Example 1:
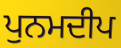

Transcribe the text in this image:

ਪੁਨਮਦੀਪ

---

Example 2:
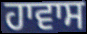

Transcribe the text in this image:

ਹਾਵਾਸ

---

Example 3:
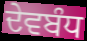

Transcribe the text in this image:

ਦੇਵਬੰਧ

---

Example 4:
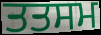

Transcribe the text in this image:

ਤਤਸਮ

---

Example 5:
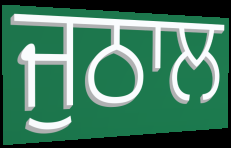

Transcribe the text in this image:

ਜੁਠਾਲ